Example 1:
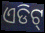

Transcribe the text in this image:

ଏଡିଟ୍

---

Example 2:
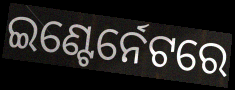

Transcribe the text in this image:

ଇଣ୍ଟେର୍ନେଟରେ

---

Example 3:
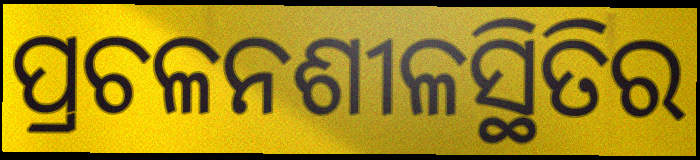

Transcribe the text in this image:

ପ୍ରଚଳନଶୀଳସ୍ଥିତିର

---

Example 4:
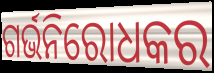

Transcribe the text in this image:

ଗର୍ଭନିରୋଧକର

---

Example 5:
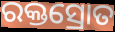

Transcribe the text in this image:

ରକ୍ତସ୍ରୋତ